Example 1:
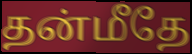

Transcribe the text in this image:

தன்மீதே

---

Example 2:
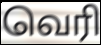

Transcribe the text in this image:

வெரி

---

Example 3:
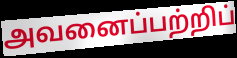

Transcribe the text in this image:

அவனைப்பற்றிப்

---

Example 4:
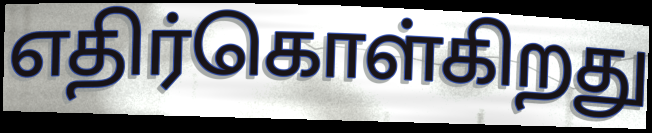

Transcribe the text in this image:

எதிர்கொள்கிறது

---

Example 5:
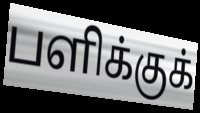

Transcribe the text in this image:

பளிக்குக்